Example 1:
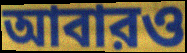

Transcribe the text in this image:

আবারও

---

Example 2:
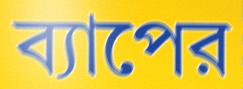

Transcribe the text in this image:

ব্যাপের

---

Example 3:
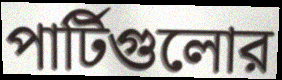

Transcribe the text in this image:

পার্টিগুলোর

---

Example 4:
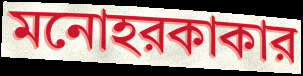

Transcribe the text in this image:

মনোহরকাকার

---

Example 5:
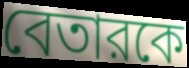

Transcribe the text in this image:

বেতারকে